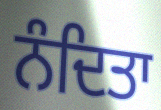
ਨੰਦਿਤਾ